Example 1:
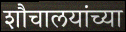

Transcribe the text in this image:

शौचालयांच्या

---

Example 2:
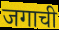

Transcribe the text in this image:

जगाची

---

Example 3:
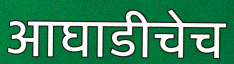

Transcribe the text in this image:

आघाडीचेच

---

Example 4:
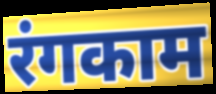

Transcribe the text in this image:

रंगकाम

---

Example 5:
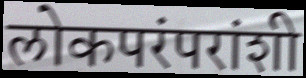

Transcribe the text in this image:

लोकपरंपरांशी